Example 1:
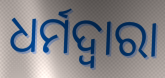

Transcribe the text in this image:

ଧର୍ମଦ୍ୱାରା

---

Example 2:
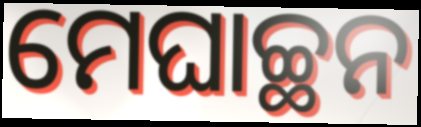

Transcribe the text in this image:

ମେଘାଚ୍ଛନ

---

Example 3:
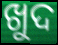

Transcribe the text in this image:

ଖୁଦ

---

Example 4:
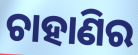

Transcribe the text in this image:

ଚାହାଣିର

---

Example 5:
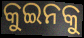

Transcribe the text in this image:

କୁଇନକୁ